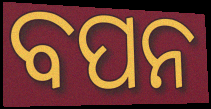
ବପନ